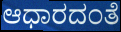
ಆಧಾರದಂತೆ